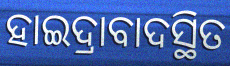
ହାଇଦ୍ରାବାଦସ୍ଥିତ